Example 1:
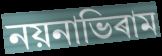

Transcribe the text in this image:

নয়নাভিৰাম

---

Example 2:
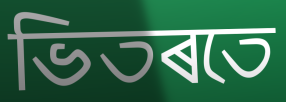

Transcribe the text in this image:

ভিতৰতে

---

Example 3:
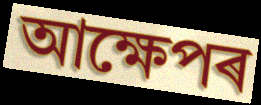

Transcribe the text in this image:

আক্ষেপৰ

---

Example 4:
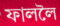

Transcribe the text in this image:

ফাললৈ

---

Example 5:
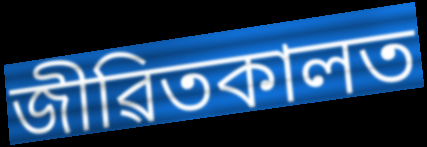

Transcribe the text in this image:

জীৱিতকালত